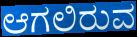
ಆಗಲಿರುವ